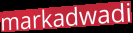
markadwadi